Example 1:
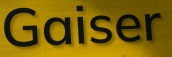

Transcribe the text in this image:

Gaiser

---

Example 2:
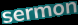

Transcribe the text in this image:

sermon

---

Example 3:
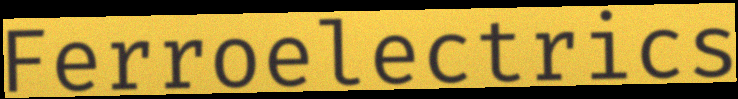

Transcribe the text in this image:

Ferroelectrics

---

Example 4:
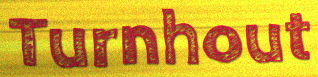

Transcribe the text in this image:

Turnhout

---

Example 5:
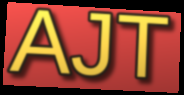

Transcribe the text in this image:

AJT